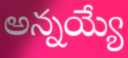
అన్నయ్యే